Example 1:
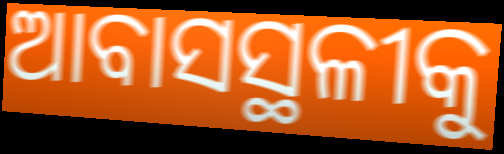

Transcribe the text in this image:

ଆବାସସ୍ଥଳୀକୁ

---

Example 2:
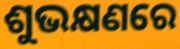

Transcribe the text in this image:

ଶୁଭକ୍ଷଣରେ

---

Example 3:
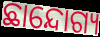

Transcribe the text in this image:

ଛାନ୍ଦୋଗ୍ୟ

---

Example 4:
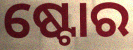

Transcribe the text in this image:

ଷ୍ଟୋର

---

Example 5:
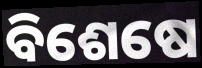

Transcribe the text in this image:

ବିଶେଷେ